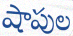
షాపుల